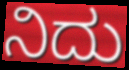
ನಿದು